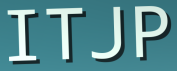
ITJP